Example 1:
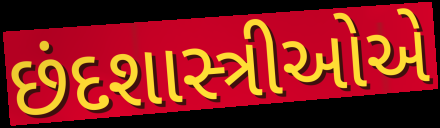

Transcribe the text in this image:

છંદશાસ્ત્રીઓએ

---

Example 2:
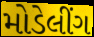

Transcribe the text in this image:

મોડેલીંગ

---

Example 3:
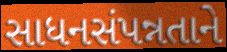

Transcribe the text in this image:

સાધનસંપન્નતાને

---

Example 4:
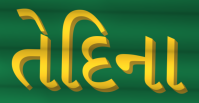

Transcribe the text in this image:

તેદિના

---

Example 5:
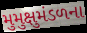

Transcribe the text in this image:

મુમુક્ષુમંડળના